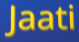
Jaati